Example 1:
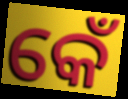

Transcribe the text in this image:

କେଁ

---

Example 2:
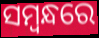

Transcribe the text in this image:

ସମ୍ବନ୍ଧରେ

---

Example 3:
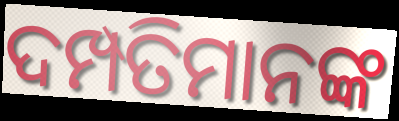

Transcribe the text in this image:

ଦମ୍ପତିମାନଙ୍କ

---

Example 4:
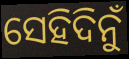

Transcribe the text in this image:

ସେହିଦିନୁଁ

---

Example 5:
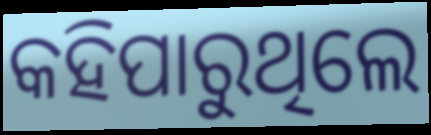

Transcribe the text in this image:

କହିପାରୁଥିଲେ